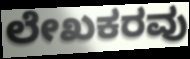
ಲೇಖಕರವು